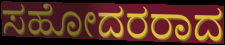
ಸಹೋದರರಾದ